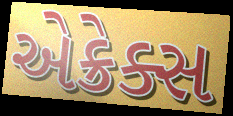
એક્રેક્સ